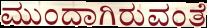
ಮುಂದಾಗಿರುವಂತೆ